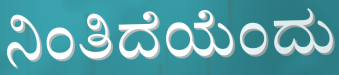
ನಿಂತಿದೆಯೆಂದು